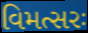
વિમત્સરઃ